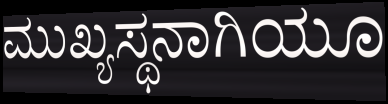
ಮುಖ್ಯಸ್ಥನಾಗಿಯೂ